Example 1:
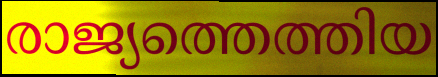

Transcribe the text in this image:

രാജ്യത്തെത്തിയ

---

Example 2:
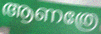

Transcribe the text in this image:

ആണത്രേ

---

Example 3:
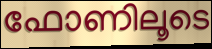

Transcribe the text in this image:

ഫോണിലൂടെ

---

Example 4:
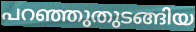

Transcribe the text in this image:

പറഞ്ഞുതുടങ്ങിയ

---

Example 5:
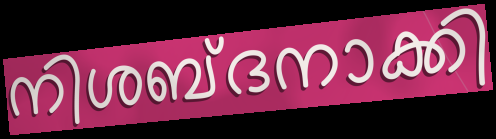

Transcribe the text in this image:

നിശബ്ദനാക്കി